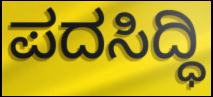
ಪದಸಿದ್ಧಿ